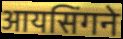
आयसिंगने